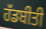
ਹੱਡਬੀਤੀ